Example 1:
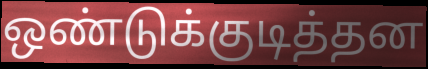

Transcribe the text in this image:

ஒண்டுக்குடித்தன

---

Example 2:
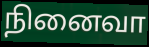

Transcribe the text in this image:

நினைவா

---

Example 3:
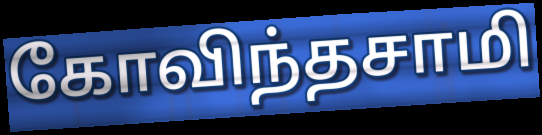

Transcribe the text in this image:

கோவிந்தசாமி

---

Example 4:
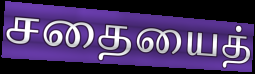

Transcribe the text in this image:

சதையைத்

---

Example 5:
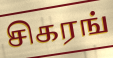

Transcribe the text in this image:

சிகரங்